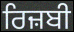
ਰਿਜ਼ਬੀ